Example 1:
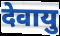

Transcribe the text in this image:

देवायु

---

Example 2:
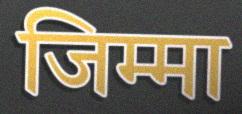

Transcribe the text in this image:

जिम्‍मा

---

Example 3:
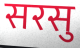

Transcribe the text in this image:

सरसु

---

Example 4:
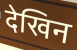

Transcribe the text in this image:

देखिन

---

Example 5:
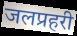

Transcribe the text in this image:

जलप्रहरी